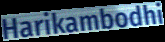
Harikambodhi